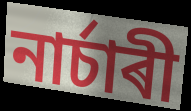
নাৰ্চাৰী